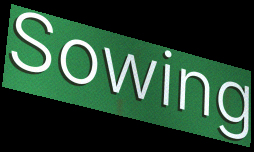
Sowing